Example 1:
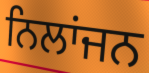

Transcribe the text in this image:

ਨਿਲਾਂਜਨ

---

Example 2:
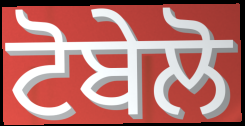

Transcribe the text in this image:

ਟੋਬੇਲੋ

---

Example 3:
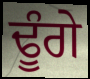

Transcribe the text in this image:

ਢੂੰਗੇ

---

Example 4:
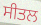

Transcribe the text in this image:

ਸੀਤਲ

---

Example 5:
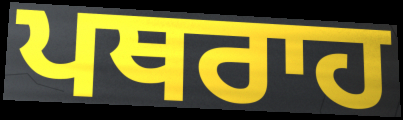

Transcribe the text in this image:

ਪਥਰਾਹ